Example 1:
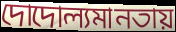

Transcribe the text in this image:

দোদোল্যমানতায়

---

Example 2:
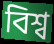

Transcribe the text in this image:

বিশ্ব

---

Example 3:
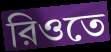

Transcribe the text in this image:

রিওতে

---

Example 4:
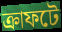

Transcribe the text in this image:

ক্রাফটে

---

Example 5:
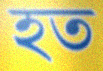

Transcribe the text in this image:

হত